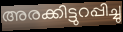
അരക്കിട്ടുറപ്പിച്ചു